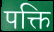
पक्ति